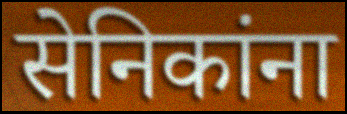
सेनिकांना